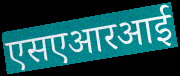
एसएआरआई